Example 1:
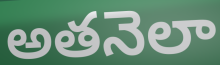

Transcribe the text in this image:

అతనెలా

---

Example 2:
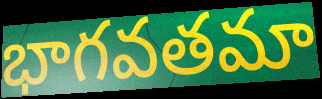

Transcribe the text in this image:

భాగవతమా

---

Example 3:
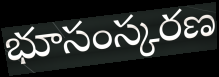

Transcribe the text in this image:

భూసంస్కరణ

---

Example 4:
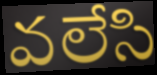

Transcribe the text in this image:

వలేసి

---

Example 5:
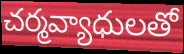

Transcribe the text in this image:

చర్మవ్యాధులతో